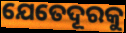
ଯେତେଦୂରକୁ